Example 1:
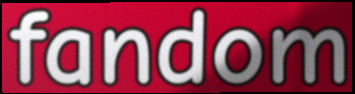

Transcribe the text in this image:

fandom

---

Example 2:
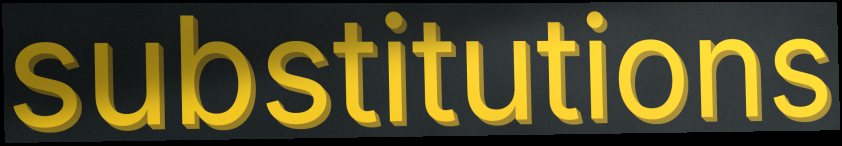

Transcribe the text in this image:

substitutions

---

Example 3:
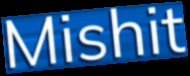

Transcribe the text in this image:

Mishit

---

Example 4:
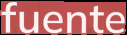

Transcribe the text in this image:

fuente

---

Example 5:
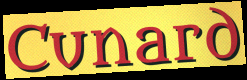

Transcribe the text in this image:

Cunard